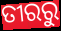
ତୀରରୁ